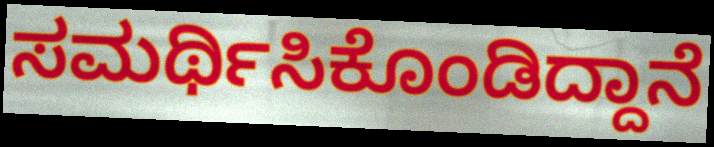
ಸಮರ್ಥಿಸಿಕೊಂಡಿದ್ದಾನೆ